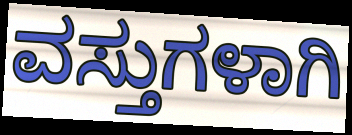
ವಸ್ತುಗಳಾಗಿ